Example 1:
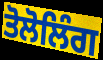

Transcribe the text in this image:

ਤੋਲੋਲਿੰਗ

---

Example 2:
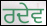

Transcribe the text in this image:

ਰਦੇਵ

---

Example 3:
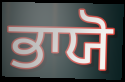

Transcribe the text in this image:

ਭਾਯੋ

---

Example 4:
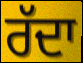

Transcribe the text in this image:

ਰੱਦਾ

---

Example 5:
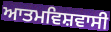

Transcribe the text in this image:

ਆਤਮਵਿਸ਼ਵਾਸੀ